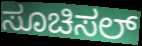
ಸೂಚಿಸಲ್